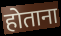
होताना